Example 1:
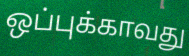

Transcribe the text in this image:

ஒப்புக்காவது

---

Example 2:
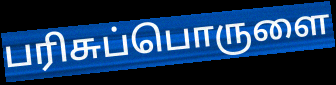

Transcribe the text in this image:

பரிசுப்பொருளை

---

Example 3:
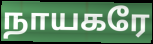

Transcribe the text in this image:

நாயகரே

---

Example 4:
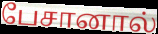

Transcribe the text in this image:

பேசானால்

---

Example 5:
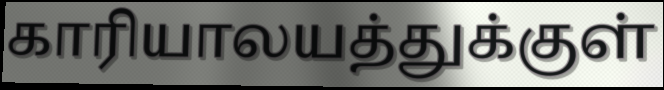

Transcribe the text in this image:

காரியாலயத்துக்குள்